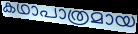
കഥാപാത്രമായ